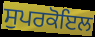
ਸੁਪਰਕੋਇਲ